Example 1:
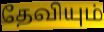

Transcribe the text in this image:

தேவியும்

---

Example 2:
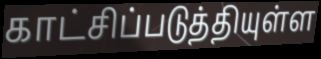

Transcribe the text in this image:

காட்சிப்படுத்தியுள்ள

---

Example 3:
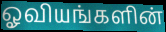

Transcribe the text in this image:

ஓவியங்களின்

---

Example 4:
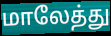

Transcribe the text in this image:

மாலேத்து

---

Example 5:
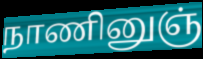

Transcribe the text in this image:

நாணினுஞ்